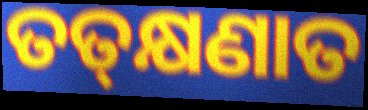
ତତ୍‌କ୍ଷଣାତ